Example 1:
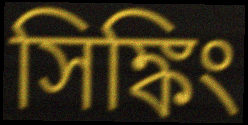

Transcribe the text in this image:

সিঙ্কিং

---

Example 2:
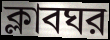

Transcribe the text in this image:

ক্লাবঘর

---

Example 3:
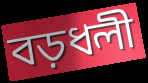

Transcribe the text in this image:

বড়ধলী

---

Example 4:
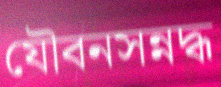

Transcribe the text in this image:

যৌবনসন্নদ্ধ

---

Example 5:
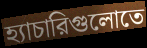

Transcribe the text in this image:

হ্যাচারিগুলোতে